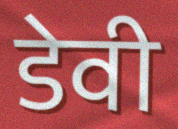
डेवी